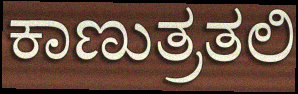
ಕಾಣುತ್ರತಲಿ